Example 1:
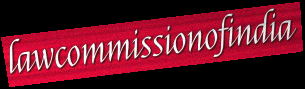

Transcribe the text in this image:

lawcommissionofindia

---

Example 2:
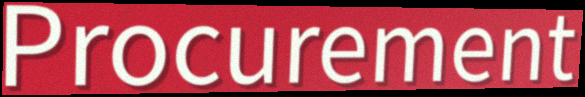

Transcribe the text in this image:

Procurement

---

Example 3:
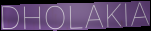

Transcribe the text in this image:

DHOLAKIA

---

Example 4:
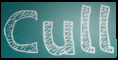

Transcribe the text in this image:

Cull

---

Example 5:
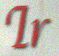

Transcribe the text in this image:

Ir